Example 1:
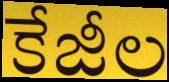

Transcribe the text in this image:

కేజీల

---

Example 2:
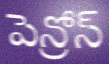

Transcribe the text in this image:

పెన్రోస్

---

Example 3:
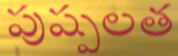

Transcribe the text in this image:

పుష్పలత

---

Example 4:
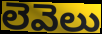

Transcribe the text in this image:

లెవెలు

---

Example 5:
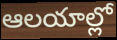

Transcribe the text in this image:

ఆలయాల్లో